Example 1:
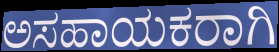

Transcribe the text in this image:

ಅಸಹಾಯಕರಾಗಿ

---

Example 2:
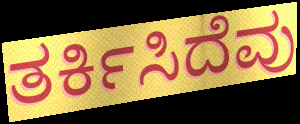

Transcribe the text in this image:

ತರ್ಕಿಸಿದೆವು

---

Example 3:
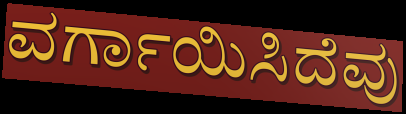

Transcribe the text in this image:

ವರ್ಗಾಯಿಸಿದೆವು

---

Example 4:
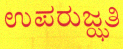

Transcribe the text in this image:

ಉಪರುಜ್ಝತಿ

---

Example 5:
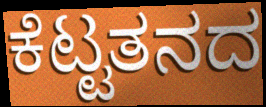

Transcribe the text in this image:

ಕೆಟ್ಟತನದ